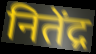
नितेंद्र